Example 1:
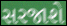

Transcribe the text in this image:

સરજાશે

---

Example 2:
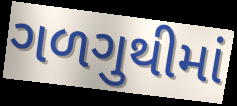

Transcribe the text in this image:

ગળગુથીમાં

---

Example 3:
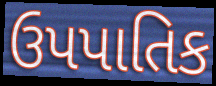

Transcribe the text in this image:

ઉપપાતિક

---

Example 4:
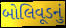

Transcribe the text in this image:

બોલિવૂડનું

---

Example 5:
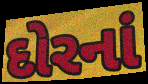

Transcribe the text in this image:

દોરનાં